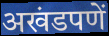
अखंडपणें